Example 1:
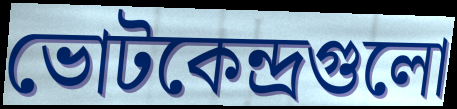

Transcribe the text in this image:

ভোটকেন্দ্রগুলো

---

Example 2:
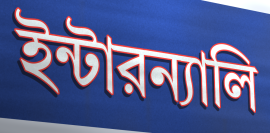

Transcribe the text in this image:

ইন্টারন্যালি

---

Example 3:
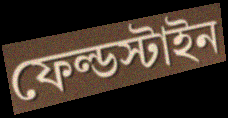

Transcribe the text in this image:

ফেল্ডস্টাইন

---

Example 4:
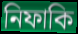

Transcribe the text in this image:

নিফাকি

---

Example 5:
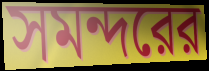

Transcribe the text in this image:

সমন্দরের